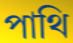
পাথি